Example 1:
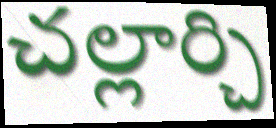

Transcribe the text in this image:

చల్లార్చి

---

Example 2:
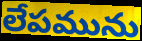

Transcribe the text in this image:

లేపమును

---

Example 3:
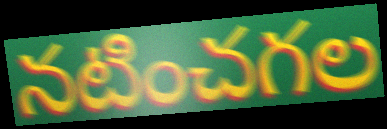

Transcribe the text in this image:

నటించగల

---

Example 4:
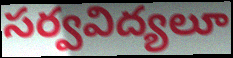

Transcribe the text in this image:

సర్వవిద్యలూ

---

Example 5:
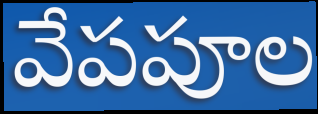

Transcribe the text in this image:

వేపపూల